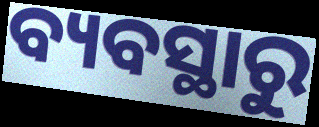
ବ୍ୟବସ୍ଥାରୁ